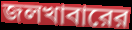
জলখাবারের